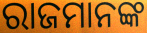
ରାଜମାନଙ୍କ